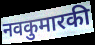
नवकुमारकी